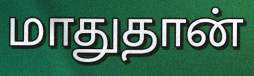
மாதுதான்